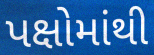
પક્ષોમાંથી